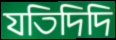
যতিদিদি